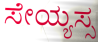
ಸೇಯ್ಯಸ್ಸ